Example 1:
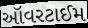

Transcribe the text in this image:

ઑવરટાઈમ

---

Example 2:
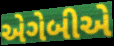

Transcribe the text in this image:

એગેબીએ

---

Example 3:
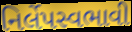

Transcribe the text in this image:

નિર્લેપસ્વભાવી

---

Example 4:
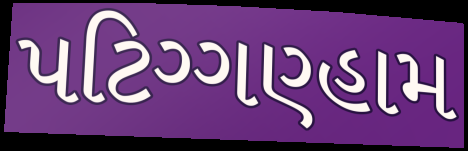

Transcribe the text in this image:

પટિગ્ગણ્હામ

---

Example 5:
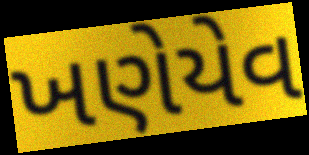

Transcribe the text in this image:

ખણેયેવ